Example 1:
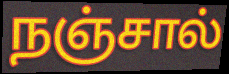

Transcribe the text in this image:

நஞ்சால்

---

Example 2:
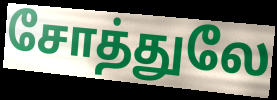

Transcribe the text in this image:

சோத்துலே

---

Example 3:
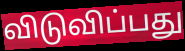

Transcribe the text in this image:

விடுவிப்பது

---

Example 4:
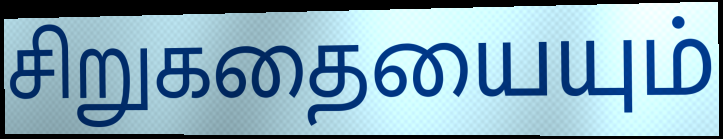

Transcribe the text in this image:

சிறுகதையையும்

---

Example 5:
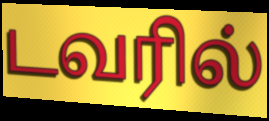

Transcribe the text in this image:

டவரில்